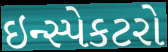
ઇન્સ્પેકટરો